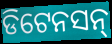
ଡିଟେନସନ୍